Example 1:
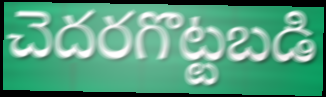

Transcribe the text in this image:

చెదరగొట్టబడి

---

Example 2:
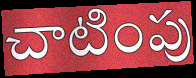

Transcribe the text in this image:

చాటింపు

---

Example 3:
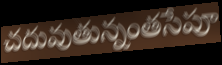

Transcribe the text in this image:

చదువుతున్నంతసేపూ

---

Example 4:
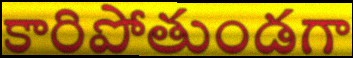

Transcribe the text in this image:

కారిపోతుండగా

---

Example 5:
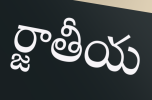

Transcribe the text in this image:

ర్జాతీయ